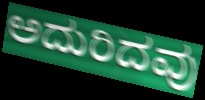
ಅದುರಿದವು